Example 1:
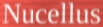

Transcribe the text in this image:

Nucellus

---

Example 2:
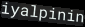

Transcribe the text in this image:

iyalpinin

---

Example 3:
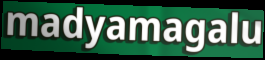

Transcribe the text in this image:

madyamagalu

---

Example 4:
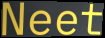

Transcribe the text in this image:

Neet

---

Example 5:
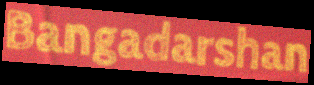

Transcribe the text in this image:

Bangadarshan